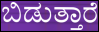
ಬಿಡುತ್ತಾರೆ